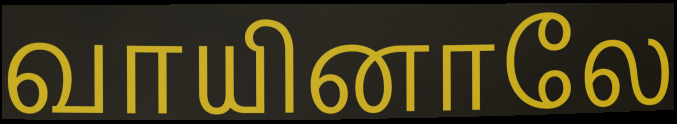
வாயினாலே